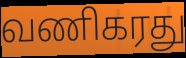
வணிகரது